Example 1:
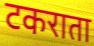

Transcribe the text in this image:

टकराता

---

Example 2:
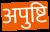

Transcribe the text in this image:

अपुष्टि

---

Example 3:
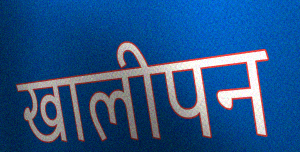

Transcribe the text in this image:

खालीपन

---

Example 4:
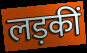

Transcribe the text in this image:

लड़कीं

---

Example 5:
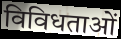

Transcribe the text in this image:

विविधताओं